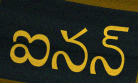
ఐనన్